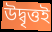
উদ্বৃত্তই